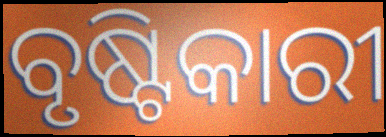
ବୃଷ୍ଟିକାରୀ